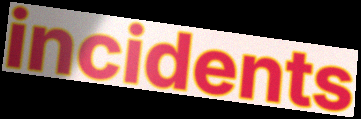
incidents